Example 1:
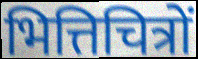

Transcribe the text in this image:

भित्तिचित्रों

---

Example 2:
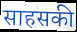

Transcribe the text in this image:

साहसकी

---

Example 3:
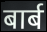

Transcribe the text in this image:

बार्ब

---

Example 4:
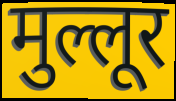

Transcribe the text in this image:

मुल्लूर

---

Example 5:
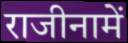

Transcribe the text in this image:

राजीनामें